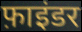
फ़ाइंडर